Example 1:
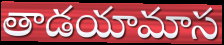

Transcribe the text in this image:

తాడయామాస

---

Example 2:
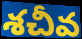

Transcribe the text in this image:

శచీవ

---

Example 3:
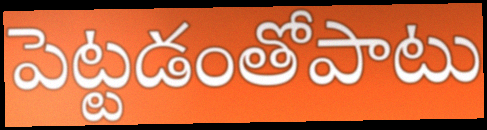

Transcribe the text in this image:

పెట్టడంతోపాటు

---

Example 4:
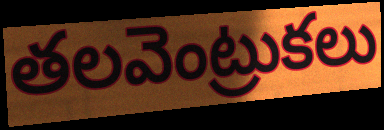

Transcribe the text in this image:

తలవెంట్రుకలు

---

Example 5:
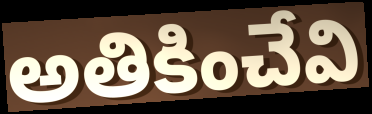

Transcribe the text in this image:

అతికించేవి